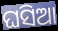
ଘସିଆ